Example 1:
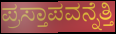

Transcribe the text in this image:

ಪ್ರಸ್ತಾಪವನ್ನೆತ್ತಿ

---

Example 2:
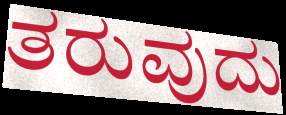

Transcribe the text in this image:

ತರುವುದು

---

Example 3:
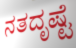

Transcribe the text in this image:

ನತದೃಷ್ಟೆ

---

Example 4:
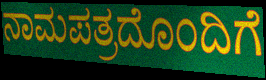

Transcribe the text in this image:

ನಾಮಪತ್ರದೊಂದಿಗೆ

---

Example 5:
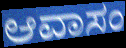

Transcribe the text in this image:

ಆವಾಸಂ